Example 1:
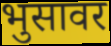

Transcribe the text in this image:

भुसावर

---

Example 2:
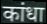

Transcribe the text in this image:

कांधा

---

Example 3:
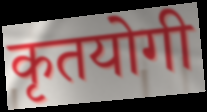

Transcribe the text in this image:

कृतयोगी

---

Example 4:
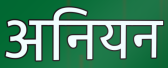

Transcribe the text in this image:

अनियन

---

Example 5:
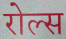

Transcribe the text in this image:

रोल्स